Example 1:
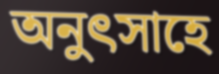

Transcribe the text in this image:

অনুৎসাহে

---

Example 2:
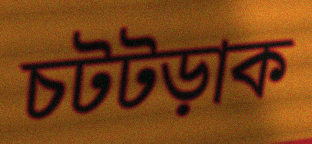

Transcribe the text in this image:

চটটড়াক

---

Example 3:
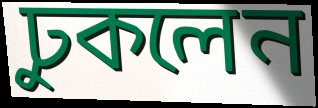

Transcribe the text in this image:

ঢুকলেন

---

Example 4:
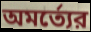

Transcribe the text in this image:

অমর্ত্যের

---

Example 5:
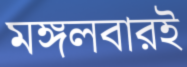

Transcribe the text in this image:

মঙ্গলবারই